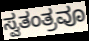
ಸ್ವತಂತ್ರವೂ